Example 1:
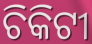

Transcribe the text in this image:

ଚିକିଟୀ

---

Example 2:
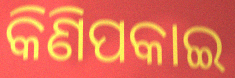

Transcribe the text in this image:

କିଣିପକାଇ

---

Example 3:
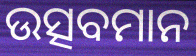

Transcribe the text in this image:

ଉତ୍ସବମାନ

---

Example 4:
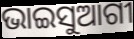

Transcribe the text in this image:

ଭାଇସୁଆଗୀ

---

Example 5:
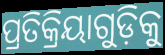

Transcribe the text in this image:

ପ୍ରତିକ୍ରିୟାଗୁଡ଼ିକୁ